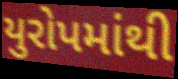
યુરોપમાંથી